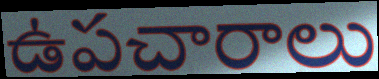
ఉపచారాలు